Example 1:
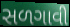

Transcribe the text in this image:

સળગાવી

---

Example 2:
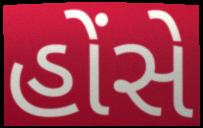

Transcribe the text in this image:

હોંસે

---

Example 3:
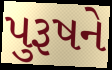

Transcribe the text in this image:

પુરૂષને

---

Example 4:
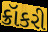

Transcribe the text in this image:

ક્રૉકરી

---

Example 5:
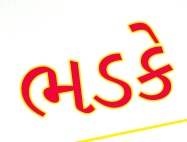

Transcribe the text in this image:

ભડકે